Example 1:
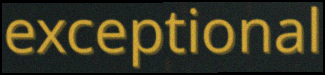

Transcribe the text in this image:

exceptional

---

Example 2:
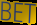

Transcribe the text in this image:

BET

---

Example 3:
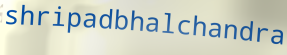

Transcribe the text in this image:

shripadbhalchandra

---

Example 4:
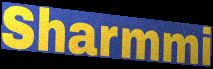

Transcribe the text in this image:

Sharmmi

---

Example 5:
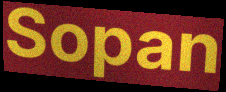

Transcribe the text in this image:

Sopan